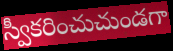
స్వీకరించుచుండగా